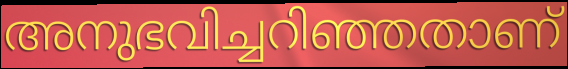
അനുഭവിച്ചറിഞ്ഞതാണ്